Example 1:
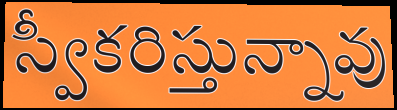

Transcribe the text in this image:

స్వీకరిస్తున్నావు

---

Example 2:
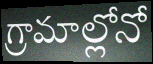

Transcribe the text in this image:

గ్రామాల్లోనో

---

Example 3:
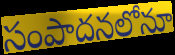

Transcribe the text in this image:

సంపాదనలోనూ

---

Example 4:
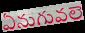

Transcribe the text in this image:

ఏనుగువలె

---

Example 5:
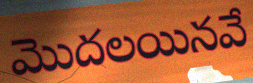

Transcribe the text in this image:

మొదలయినవే